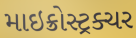
માઇક્રોસ્ટ્રક્ચર